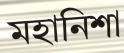
মহানিশা